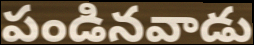
పండినవాడు